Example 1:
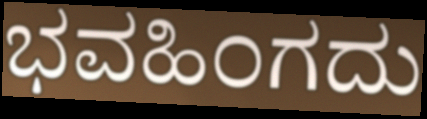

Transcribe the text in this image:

ಭವಹಿಂಗದು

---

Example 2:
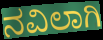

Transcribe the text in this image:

ನವಿಲಾಗಿ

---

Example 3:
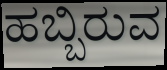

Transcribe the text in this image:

ಹಬ್ಬಿರುವ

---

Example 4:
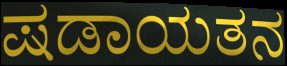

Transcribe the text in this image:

ಷಡಾಯತನ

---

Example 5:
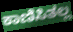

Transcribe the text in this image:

ಕಾಣಿಸಿತಲ್ಲ